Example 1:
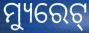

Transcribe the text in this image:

ମ୍ୟୁରେଟ୍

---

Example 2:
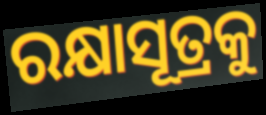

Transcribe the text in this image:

ରକ୍ଷାସୂତ୍ରକୁ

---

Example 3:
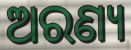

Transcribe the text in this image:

ଅରଣ୍ୟ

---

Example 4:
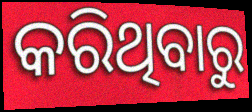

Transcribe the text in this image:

କରିଥିବାରୁ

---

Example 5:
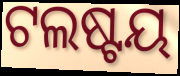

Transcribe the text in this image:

ଟଲଷ୍ଟୟ